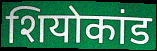
शियोकांड